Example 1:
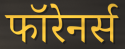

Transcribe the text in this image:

फॉरेनर्स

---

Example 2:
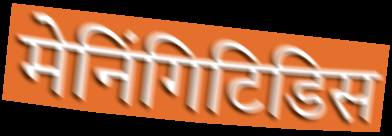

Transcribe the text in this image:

मेनिंगिटिडिस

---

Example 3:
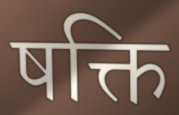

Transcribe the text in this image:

षक्ति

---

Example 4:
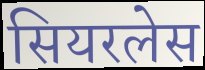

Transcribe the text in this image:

सियरलेस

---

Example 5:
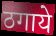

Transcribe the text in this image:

ठगाये